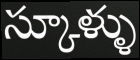
స్కూళ్ళు